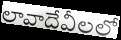
లావాదేవీలలో